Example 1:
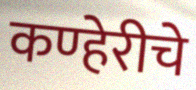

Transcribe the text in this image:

कण्हेरीचे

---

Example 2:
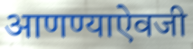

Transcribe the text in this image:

आणण्याऐवजी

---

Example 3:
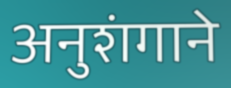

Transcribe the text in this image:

अनुशंगाने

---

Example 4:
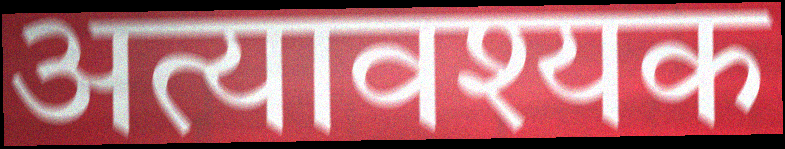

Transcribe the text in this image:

अत्यावश्‍यक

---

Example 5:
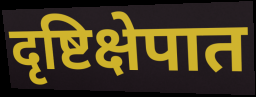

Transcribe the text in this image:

दृष्टिक्षेपात